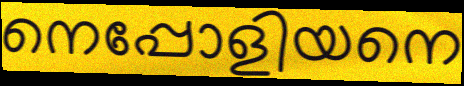
നെപ്പോളിയനെ